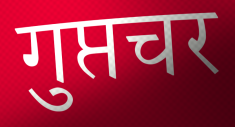
गुप्तचर